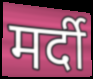
मर्दी